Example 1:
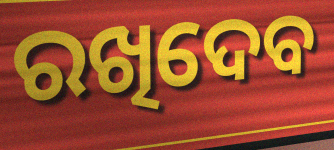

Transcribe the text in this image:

ରଖିଦେବ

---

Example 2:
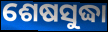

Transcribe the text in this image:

ଶେଷସୁଦ୍ଧା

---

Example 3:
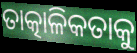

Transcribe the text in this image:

ତାତ୍କାଳିକତାକୁ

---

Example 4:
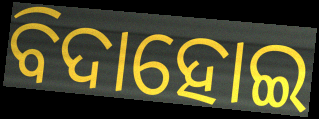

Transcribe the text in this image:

ବିଦାହୋଇ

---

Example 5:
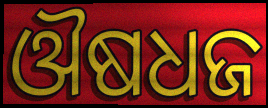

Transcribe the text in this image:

ଔଷଧଜ